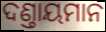
ଦଣ୍ତାୟମାନ